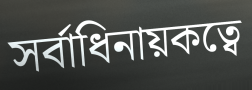
সর্বাধিনায়কত্বে